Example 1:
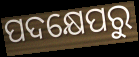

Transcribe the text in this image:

ପଦକ୍ଷେପରୁ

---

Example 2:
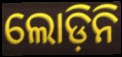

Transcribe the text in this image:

ଲୋଡ଼ିନି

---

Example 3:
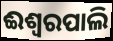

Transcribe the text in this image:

ଈଶ୍ୱରପାଲି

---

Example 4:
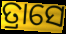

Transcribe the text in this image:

ତ୍ରାସେ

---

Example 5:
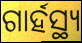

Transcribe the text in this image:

ଗାର୍ହସ୍ଥ୍ୟ